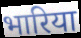
भारिया